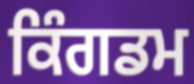
ਕਿੰਗਡਮ